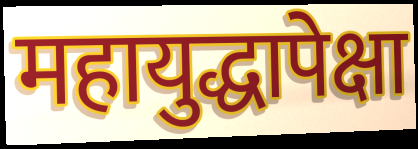
महायुद्धापेक्षा